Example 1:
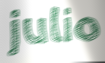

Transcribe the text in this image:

julio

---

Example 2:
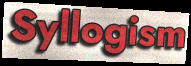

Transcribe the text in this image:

Syllogism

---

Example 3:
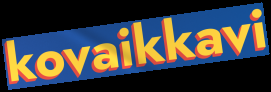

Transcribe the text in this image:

kovaikkavi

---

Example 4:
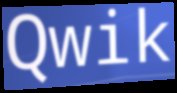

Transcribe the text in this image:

Qwik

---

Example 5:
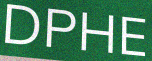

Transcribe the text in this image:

DPHE